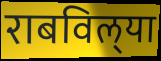
राबविल्या